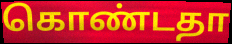
கொண்டதா